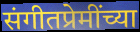
संगीतप्रेमींच्या